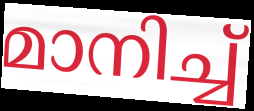
മാനിച്ച്